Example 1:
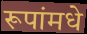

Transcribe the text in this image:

रूपांमधे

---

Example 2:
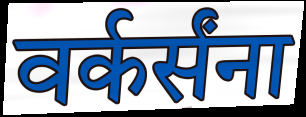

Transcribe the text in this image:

वर्कर्संना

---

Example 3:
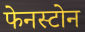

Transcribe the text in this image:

फेनस्टोन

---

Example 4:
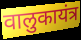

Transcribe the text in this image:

वालुकायंत्र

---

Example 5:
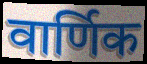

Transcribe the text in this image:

वार्णिक